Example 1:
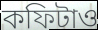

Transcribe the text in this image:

কফিটাও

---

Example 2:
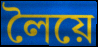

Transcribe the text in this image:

লৈয়ে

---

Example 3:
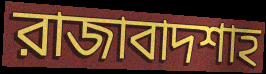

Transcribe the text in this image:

রাজাবাদশাহ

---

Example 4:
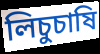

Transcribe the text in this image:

লিচুচাষি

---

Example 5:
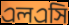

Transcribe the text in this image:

এলএসি